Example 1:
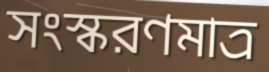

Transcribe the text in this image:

সংস্করণমাত্র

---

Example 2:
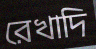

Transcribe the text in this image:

রেখাদি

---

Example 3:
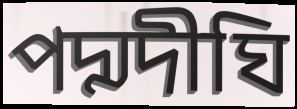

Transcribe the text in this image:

পদ্মদীঘি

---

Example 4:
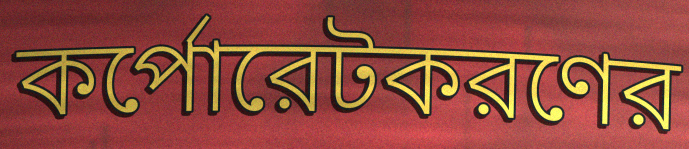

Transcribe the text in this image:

কর্পোরেটকরণের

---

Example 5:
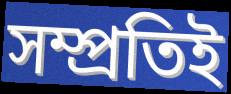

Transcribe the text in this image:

সম্প্রতিই